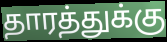
தாரத்துக்கு